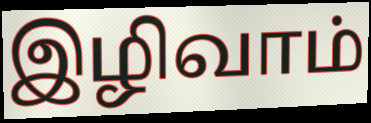
இழிவாம்